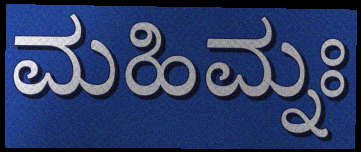
ಮಹಿಮ್ನಃ